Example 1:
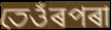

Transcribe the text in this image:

তেওঁৰপৰা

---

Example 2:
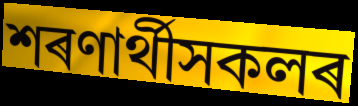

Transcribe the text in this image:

শৰণাৰ্থীসকলৰ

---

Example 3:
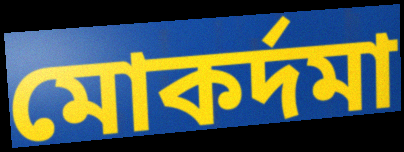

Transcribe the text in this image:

মোকৰ্দমা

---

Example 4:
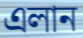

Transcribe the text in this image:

এলান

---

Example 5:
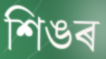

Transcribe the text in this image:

শিঙৰ